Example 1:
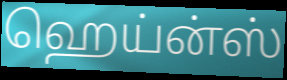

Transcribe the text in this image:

ஹெய்ன்ஸ்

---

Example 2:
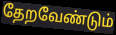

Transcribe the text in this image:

தேறவேண்டும்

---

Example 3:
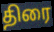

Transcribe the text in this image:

திரை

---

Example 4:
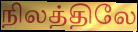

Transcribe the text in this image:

நிலத்திலே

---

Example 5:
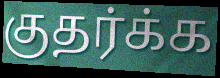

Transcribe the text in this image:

குதர்க்க